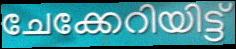
ചേക്കേറിയിട്ട്